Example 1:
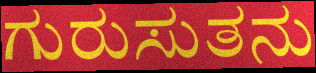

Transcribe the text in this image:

ಗುರುಸುತನು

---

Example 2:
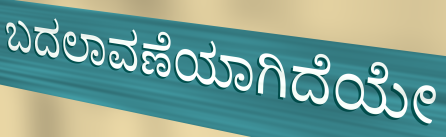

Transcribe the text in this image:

ಬದಲಾವಣೆಯಾಗಿದೆಯೇ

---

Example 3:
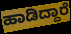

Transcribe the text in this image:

ಹಾಡಿದ್ದಾರೆ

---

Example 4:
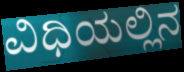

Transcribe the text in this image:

ವಿಧಿಯಲ್ಲಿನ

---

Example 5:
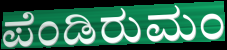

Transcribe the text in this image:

ಪೆಂಡಿರುಮಂ